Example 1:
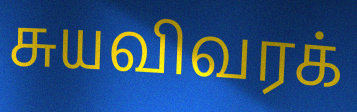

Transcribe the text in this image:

சுயவிவரக்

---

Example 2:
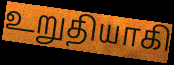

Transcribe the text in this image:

உறுதியாகி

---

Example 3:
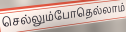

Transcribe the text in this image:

செல்லும்போதெல்லாம்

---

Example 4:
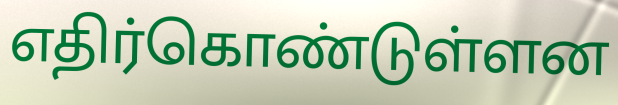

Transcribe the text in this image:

எதிர்கொண்டுள்ளன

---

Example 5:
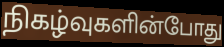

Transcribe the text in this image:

நிகழ்வுகளின்போது